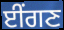
ਈਂਗਣ